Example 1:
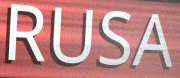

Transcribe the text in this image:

RUSA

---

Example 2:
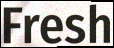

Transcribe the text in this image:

Fresh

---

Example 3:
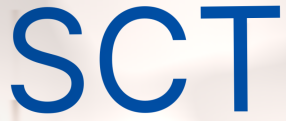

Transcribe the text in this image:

SCT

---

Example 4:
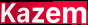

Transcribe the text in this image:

Kazem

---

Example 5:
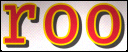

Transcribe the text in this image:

roo